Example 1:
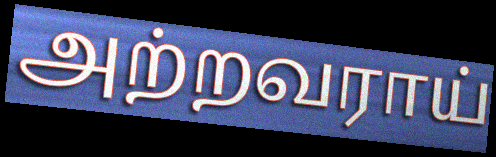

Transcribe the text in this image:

அற்றவராய்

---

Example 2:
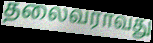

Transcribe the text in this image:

தலைவராவது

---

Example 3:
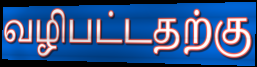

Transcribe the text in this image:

வழிபட்டதற்கு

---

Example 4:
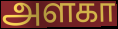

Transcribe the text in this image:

அளகா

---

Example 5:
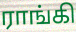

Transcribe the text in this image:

ராங்கி